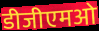
डीजीएमओ